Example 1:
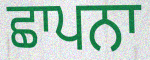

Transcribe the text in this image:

ਛਾਪਨਾ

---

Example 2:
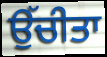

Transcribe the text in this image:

ਉੱਚੀਤਾ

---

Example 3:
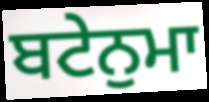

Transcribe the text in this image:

ਬਟੇਨੁਮਾ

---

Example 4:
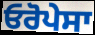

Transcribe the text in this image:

ਓਰੋਪੇਸਾ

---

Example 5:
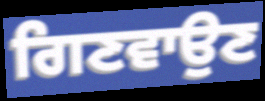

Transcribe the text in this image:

ਗਿਣਵਾਉਣ